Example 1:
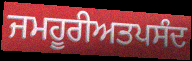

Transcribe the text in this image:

ਜਮਹੂਰੀਅਤਪਸੰਦ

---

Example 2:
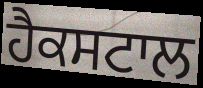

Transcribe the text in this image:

ਹੈਕਸਟਾਲ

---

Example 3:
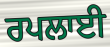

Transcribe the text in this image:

ਰਪਲਾਈ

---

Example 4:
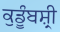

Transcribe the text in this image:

ਕੁਡੂੰਬਸ਼੍ਰੀ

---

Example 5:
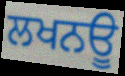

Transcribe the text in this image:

ਲਖਨਊ